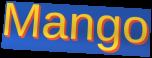
Mango